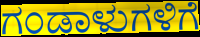
ಗಂಡಾಳುಗಳಿಗೆ